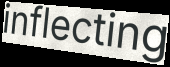
inflecting